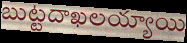
బుట్టదాఖలయ్యాయి